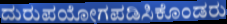
ದುರುಪಯೋಗಪಡಿಸಿಕೊಂಡರು